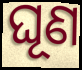
ଘୂଣ